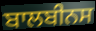
ਬਾਲਬੀਨਸ